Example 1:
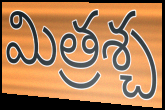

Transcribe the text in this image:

మిత్రశ్చ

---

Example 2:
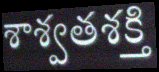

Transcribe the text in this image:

శాశ్వతశక్తి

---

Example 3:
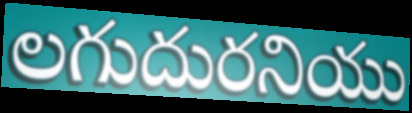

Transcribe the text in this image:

లగుదురనియు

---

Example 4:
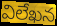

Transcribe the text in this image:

విలేఖన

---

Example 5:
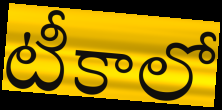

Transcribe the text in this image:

టీకాలో